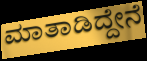
ಮಾತಾಡಿದ್ದೇನೆ